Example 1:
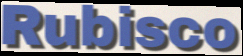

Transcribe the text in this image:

Rubisco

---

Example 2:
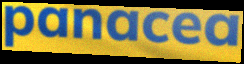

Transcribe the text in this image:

panacea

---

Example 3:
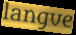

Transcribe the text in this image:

langue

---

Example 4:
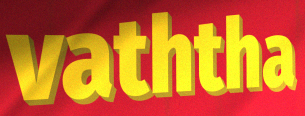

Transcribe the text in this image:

vaththa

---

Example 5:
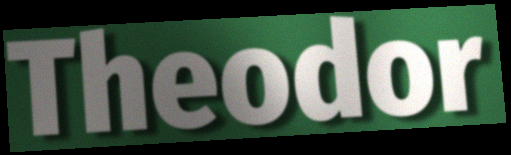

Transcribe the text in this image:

Theodor